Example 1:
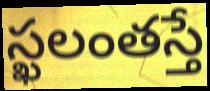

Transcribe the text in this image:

స్ఖలంతస్తే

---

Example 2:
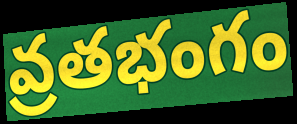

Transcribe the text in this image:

వ్రతభంగం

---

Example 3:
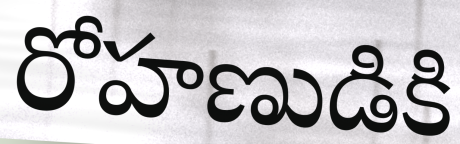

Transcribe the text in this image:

రోహణుడికి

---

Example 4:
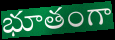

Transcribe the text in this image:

భూతంగా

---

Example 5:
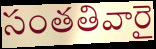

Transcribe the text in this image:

సంతతివారై